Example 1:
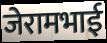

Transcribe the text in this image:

जेरामभाई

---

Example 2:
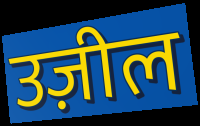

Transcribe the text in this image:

उज़ील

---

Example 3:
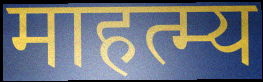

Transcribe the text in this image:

माहत्म्य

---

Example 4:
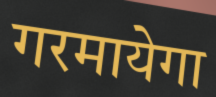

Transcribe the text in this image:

गरमायेगा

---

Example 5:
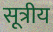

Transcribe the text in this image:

सूत्रीय